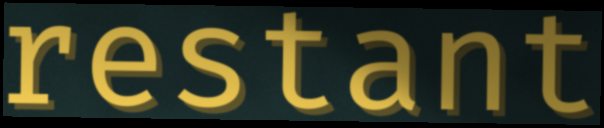
restant